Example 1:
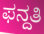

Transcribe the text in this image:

ಫನ್ದತಿ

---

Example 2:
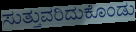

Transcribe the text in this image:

ಸುತ್ತುವರಿದುಕೊಂಡು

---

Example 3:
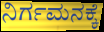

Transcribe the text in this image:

ನಿರ್ಗಮನಕ್ಕೆ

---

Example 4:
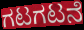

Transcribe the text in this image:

ಗಟಗಟನೆ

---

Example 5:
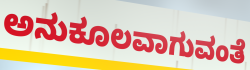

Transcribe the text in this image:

ಅನುಕೂಲವಾಗುವಂತೆ